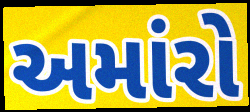
અમાંરો